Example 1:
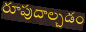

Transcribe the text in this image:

రూపుదాల్చడం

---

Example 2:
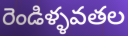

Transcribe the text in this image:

రెండిళ్ళవతల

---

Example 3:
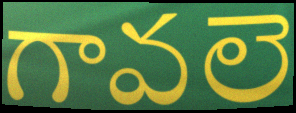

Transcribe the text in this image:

గావలె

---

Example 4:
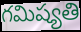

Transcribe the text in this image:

గమిష్యతి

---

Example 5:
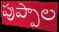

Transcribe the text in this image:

పుప్పాల